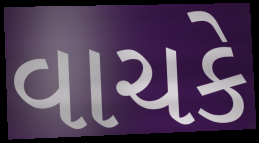
વાચકે